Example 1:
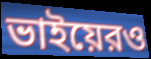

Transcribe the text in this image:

ভাইয়েরও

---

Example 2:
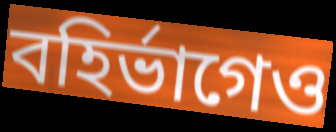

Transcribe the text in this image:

বহির্ভাগেও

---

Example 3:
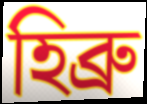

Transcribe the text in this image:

হিব্রু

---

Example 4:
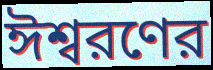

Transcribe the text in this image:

ঈশ্বরণের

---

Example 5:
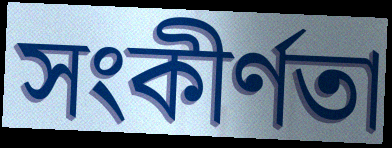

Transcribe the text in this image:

সংকীর্ণতা